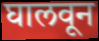
घालवून